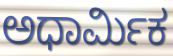
ಅಧಾರ್ಮಿಕ